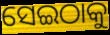
ସେଇଠାକୁ